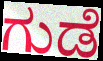
ಗುಡೆ